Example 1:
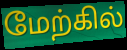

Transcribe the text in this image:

மேற்கில்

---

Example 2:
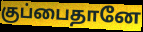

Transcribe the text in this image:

குப்பைதானே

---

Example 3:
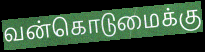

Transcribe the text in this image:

வன்கொடுமைக்கு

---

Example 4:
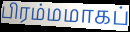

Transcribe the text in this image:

பிரம்மமாகப்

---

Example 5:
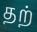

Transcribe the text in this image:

தற்